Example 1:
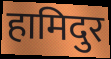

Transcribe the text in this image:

हामिदुर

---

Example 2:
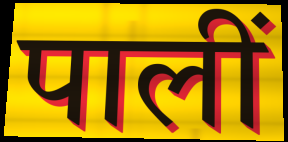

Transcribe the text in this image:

पालीं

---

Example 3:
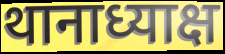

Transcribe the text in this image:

थानाध्याक्ष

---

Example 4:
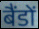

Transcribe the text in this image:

बैंडों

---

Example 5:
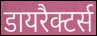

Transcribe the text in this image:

डायरैक्टर्स